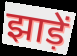
झाड़ें